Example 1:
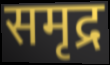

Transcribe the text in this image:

समृद्र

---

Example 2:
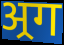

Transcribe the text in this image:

अ्रग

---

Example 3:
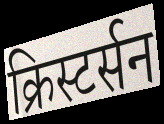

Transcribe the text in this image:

क्रिस्टर्सन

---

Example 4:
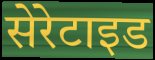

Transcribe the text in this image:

सेरेटाइड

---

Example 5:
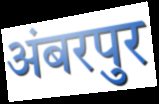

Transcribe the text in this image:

अंबरपुर